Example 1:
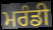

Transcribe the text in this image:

ਮਰੰਡੀ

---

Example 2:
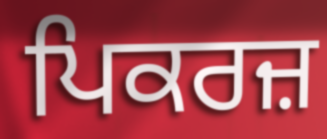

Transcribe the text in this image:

ਪਿਕਰਜ਼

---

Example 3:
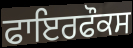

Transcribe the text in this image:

ਫਾਇਰਫੌਕਸ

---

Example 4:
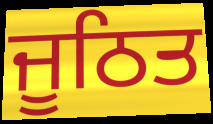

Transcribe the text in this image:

ਜੂਠਿਤ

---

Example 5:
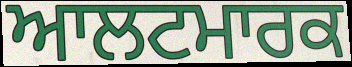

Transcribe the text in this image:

ਆਲਟਮਾਰਕ